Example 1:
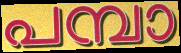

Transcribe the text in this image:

പമ്പാ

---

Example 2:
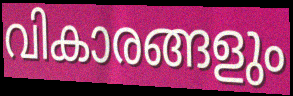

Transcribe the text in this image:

വികാരങ്ങളും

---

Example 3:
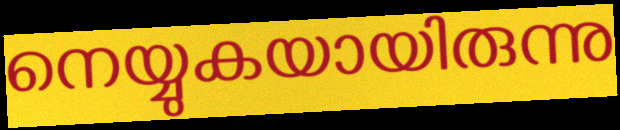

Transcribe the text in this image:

നെയ്യുകയായിരുന്നു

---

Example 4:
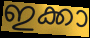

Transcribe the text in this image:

ഇക്കാ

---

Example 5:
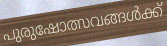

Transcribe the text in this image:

പുരുഷോത്സവങ്ങൾക്ക്